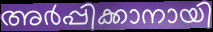
അർപ്പിക്കാനായി